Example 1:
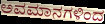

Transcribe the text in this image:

ಅವಮಾನಗಳಿಂದ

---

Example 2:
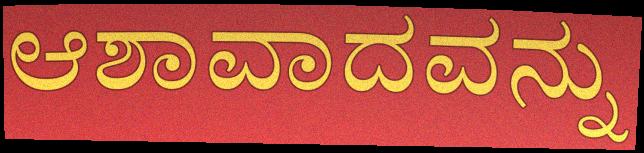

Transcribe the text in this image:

ಆಶಾವಾದವನ್ನು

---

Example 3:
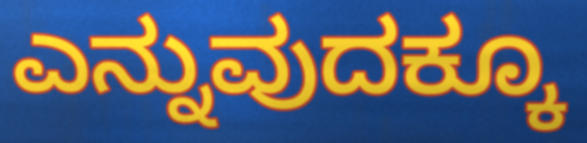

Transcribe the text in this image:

ಎನ್ನುವುದಕ್ಕೂ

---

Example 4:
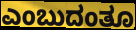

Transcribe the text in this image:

ಎಂಬುದಂತೂ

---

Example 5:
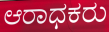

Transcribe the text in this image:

ಆರಾಧಕರು